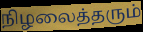
நிழலைத்தரும்